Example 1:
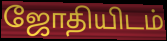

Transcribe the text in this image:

ஜோதியிடம்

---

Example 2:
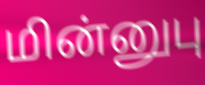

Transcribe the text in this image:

மின்னுபு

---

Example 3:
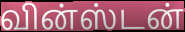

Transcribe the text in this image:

வின்ஸ்டன்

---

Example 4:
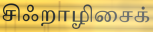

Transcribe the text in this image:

சிஃறாழிசைக்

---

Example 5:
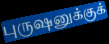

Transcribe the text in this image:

புருஷனுக்குக்